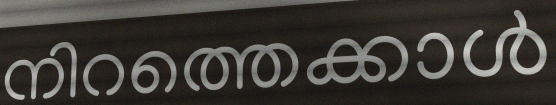
നിറത്തെക്കാൾ